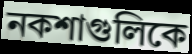
নকশাগুলিকে